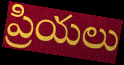
ప్రియలు